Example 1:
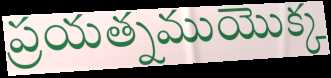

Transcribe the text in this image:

ప్రయత్నముయొక్క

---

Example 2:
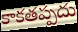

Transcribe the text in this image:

కాకతప్పదు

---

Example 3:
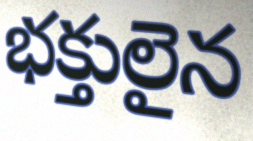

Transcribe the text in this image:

భక్తులైన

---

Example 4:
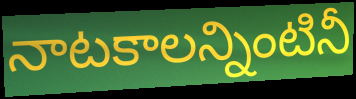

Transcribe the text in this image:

నాటకాలన్నింటినీ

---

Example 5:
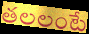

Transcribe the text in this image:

తలలంటే